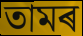
তামৰ